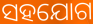
ସହଯୋଗ